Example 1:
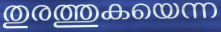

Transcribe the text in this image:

തുരത്തുകയെന്ന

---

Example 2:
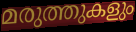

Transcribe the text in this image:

മരുത്തുകളും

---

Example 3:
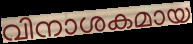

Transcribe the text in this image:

വിനാശകമായ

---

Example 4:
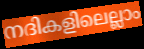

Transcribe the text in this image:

നദികളിലെല്ലാം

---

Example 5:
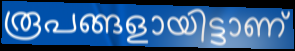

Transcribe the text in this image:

രൂപങ്ങളായിട്ടാണ്